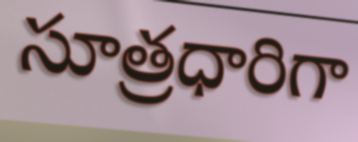
సూత్రధారిగా